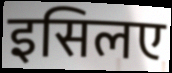
इसिलए